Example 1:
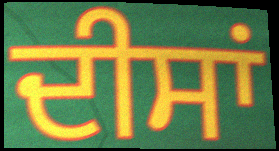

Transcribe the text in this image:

ਦੀਸਾਂ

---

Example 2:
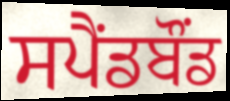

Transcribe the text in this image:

ਸਪੈਂਡਬੌਂਡ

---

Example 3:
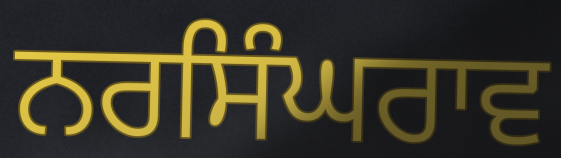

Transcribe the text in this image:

ਨਰਸਿੰਘਰਾਵ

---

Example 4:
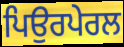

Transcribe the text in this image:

ਪਿਉਰਪੇਰਲ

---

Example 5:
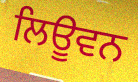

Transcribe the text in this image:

ਲਿਊਵਨ